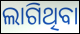
ଲାଗିଥିବା